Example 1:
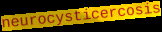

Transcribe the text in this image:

neurocysticercosis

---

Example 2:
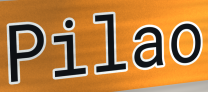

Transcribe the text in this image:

Pilao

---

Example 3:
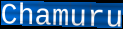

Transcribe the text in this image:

Chamuru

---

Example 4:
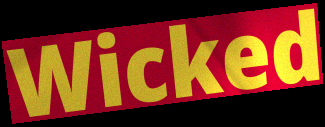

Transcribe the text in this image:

Wicked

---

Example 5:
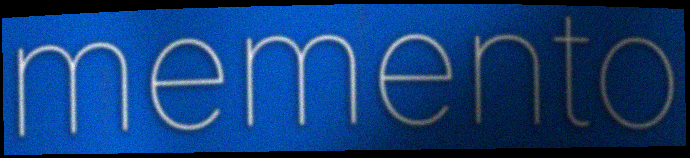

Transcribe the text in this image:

memento